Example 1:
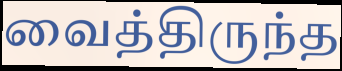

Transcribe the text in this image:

வைத்திருந்த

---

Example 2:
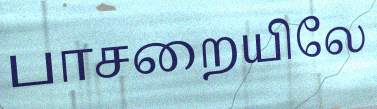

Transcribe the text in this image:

பாசறையிலே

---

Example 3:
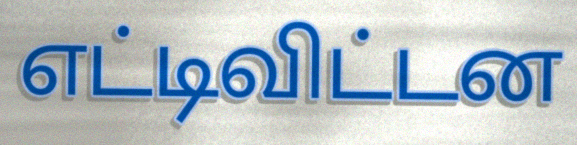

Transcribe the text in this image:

எட்டிவிட்டன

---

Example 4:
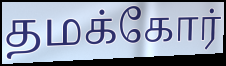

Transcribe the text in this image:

தமக்கோர்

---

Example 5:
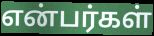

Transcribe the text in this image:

என்பர்கள்